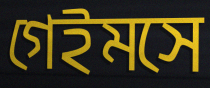
গেইমসে